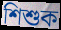
শিশুক